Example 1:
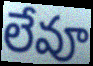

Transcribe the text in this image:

లేవూ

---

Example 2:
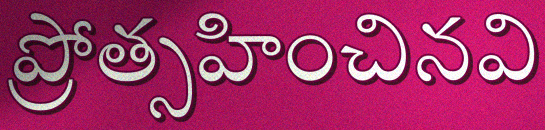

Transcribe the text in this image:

ప్రోత్సహించినవి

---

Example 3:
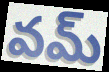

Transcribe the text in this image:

వమ్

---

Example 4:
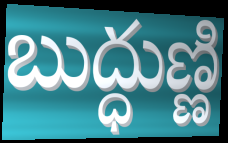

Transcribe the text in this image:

బుద్ధుణ్ణి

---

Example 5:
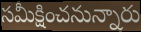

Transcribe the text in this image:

సమీక్షించనున్నారు